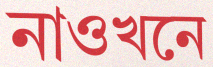
নাওখনে